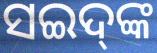
ସଇଦ୍‌ଙ୍କ